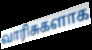
வாரிசுகளாக